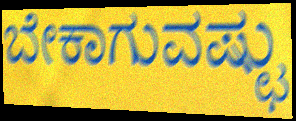
ಬೇಕಾಗುವಷ್ಟು